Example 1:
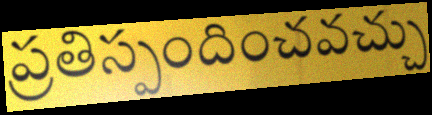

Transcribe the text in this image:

ప్రతిస్పందించవచ్చు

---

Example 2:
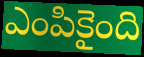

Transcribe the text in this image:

ఎంపికైంది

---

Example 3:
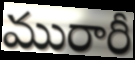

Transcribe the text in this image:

మురారీ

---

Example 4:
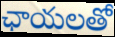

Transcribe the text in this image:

ఛాయలతో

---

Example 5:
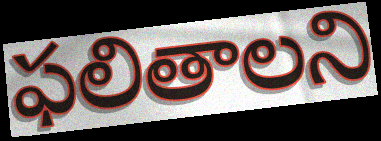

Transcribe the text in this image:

ఫలితాలని